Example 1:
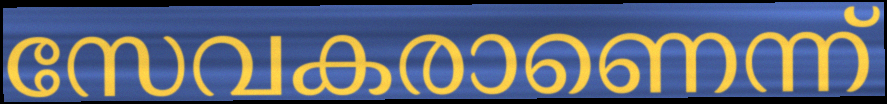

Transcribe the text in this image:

സേവകരാണെന്ന്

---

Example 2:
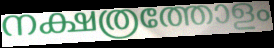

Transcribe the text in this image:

നക്ഷത്രത്തോളം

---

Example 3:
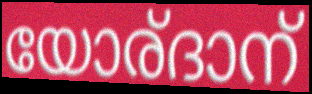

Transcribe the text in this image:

യോര്ദാന്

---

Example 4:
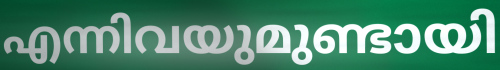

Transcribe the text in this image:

എന്നിവയുമുണ്ടായി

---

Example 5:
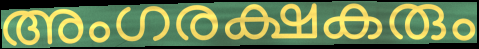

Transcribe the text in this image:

അംഗരക്ഷകരും